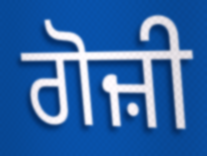
ਗੋਜ਼ੀ